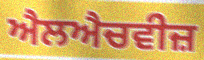
ਐਲਐਚਵੀਜ਼